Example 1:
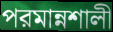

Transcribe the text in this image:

পরমান্নশালী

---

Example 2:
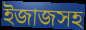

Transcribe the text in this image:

ইজাজসহ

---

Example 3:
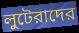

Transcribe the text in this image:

লুটেরাদের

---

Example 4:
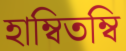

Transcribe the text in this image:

হাম্বিতম্বি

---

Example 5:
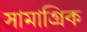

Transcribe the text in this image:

সামাগ্রিক